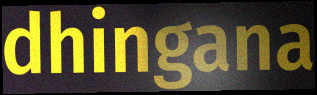
dhingana